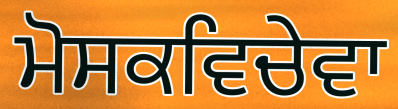
ਮੋਸਕਵਿਚੇਵਾ